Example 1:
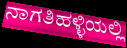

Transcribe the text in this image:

ನಾಗತಿಹಳ್ಳಿಯಲ್ಲಿ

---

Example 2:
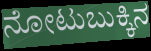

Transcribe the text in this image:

ನೋಟುಬುಕ್ಕಿನ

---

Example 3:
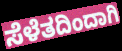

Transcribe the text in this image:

ಸೆಳೆತದಿಂದಾಗಿ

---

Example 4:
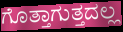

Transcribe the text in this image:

ಗೊತ್ತಾಗುತ್ತದಲ್ಲ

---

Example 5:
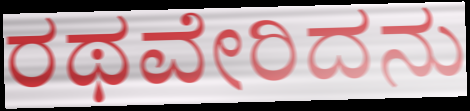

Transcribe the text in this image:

ರಥವೇರಿದನು